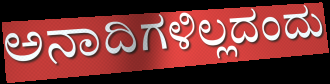
ಅನಾದಿಗಳಿಲ್ಲದಂದು